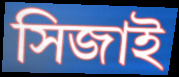
সিজাই